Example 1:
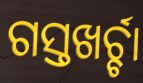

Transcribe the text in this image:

ଗସ୍ତଖର୍ଚ୍ଚା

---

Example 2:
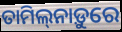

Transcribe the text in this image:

ତାମିଲ୍‌ନାଡ଼ୁରେ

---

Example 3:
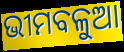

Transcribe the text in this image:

ଭୀମବଳୁଆ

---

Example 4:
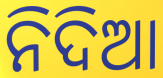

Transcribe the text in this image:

ନିଦିଆ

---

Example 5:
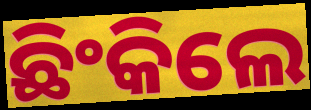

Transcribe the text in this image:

ଛିଂକିଲେ